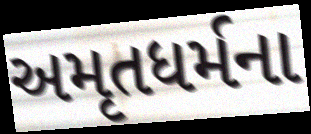
અમૃતધર્મના